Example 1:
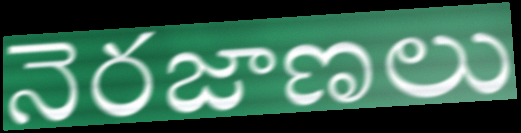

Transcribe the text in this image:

నెరజాణలు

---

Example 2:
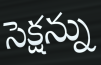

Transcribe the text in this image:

సెక్షన్ను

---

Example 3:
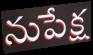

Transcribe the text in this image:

నుపేక్ష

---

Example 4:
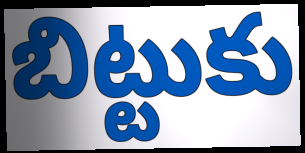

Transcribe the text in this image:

బిట్టుకు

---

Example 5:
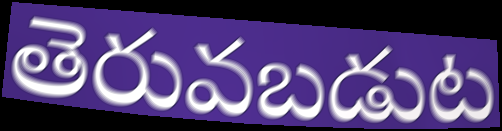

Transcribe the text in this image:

తెరువబడుట